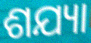
ଶଯ୍ୟା